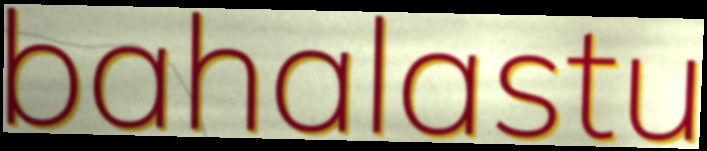
bahalastu